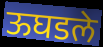
ऊघडले